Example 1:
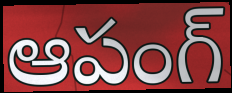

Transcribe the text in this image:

ఆపంగ్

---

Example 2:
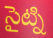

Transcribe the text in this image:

సైట్ని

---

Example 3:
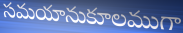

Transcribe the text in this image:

సమయానుకూలముగా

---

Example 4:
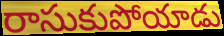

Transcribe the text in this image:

రాసుకుపోయాడు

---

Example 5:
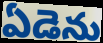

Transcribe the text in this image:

ఏడెను